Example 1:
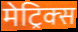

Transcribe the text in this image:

मेट्रिक्‍स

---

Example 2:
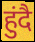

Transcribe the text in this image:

हुंदै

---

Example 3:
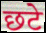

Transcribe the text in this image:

छटे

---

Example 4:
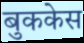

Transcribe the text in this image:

बुककेस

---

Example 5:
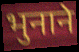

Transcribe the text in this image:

भुनाने